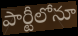
పార్టీలోనూ